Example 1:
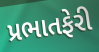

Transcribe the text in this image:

પ્રભાતફેરી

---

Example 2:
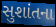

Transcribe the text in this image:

સુશાંતના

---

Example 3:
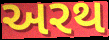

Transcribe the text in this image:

અરથ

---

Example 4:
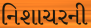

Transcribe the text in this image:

નિશાચરની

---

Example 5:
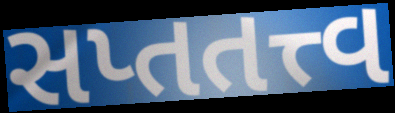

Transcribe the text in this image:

સપ્તતત્ત્વ